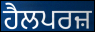
ਹੈਲਪਰਜ਼